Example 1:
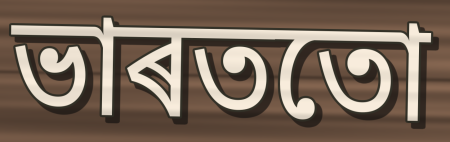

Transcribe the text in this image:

ভাৰততো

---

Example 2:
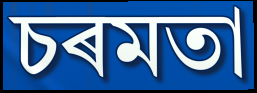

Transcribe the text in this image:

চৰমতা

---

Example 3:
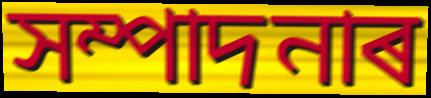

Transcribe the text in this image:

সম্পাদনাৰ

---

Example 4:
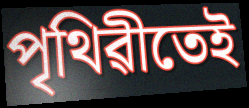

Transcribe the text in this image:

পৃথিৱীতেই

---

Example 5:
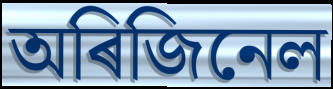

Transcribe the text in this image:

অৰিজিনেল